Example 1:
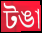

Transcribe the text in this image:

টঙা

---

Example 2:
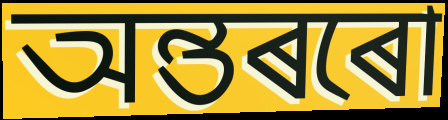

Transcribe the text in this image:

অন্তৰৰো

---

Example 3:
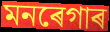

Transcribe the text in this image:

মনৰেগাৰ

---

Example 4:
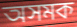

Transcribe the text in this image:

অসমক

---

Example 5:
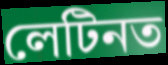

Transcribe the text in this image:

লেটিনত